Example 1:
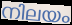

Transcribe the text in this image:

നിലയം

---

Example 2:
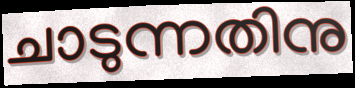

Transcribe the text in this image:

ചാടുന്നതിനു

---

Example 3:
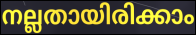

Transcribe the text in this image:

നല്ലതായിരിക്കാം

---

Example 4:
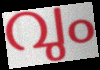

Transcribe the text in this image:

വും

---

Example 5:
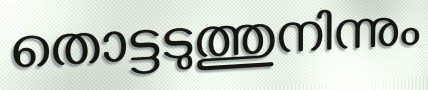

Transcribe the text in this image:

തൊട്ടടുത്തുനിന്നും